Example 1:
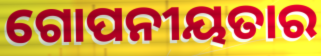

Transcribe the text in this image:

ଗୋପନୀୟତାର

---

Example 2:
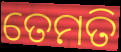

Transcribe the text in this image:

ତେମତି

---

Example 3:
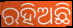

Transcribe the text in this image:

ରହିଅଛି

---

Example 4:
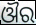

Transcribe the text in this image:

ଔର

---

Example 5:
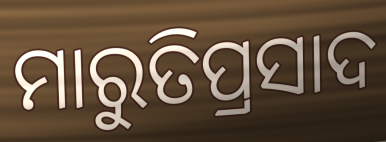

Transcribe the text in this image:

ମାରୁତିପ୍ରସାଦ